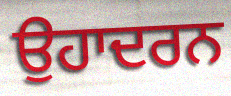
ਉਹਾਦਰਨ